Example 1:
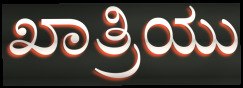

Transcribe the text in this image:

ಖಾತ್ರಿಯು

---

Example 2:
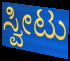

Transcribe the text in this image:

ಸ್ವೀಟು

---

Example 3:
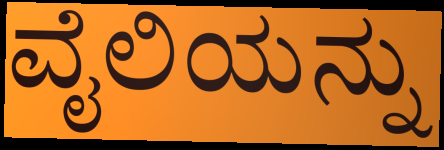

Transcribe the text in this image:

ವೈಲಿಯನ್ನು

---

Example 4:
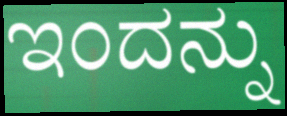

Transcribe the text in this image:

ಇಂದನ್ನು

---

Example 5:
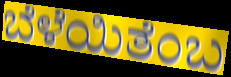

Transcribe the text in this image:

ಬೆಳೆಯಿತೆಂಬ